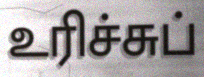
உரிச்சுப்